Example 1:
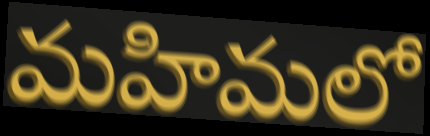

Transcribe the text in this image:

మహిమలో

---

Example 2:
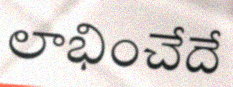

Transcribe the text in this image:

లాభించేదే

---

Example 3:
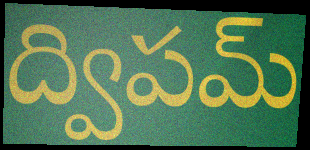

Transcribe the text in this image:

ద్విపమ్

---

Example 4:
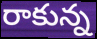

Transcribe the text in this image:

రాకున్న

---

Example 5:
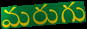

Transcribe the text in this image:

మరుగు